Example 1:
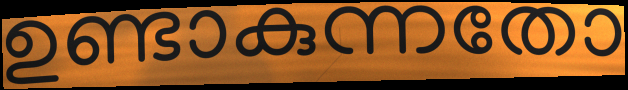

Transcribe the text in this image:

ഉണ്ടാകുന്നതോ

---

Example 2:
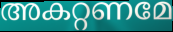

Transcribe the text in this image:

അകറ്റണമേ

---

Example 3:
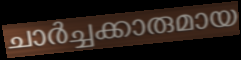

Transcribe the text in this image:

ചാർച്ചക്കാരുമായ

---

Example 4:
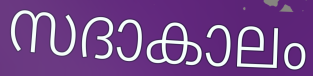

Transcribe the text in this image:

സദാകാലം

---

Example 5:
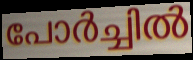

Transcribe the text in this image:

പോർച്ചിൽ